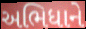
અભિધાને